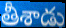
తీశాడు